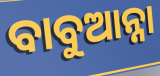
ବାବୁଆନ୍ନା